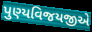
પુણ્યવિજયજીએ